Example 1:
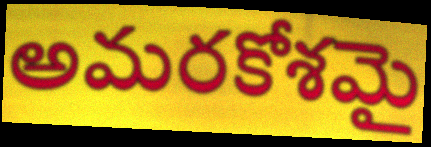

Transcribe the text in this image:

అమరకోశమై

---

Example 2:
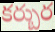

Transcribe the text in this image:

కర్బుర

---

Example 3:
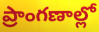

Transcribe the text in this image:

ప్రాంగణాల్లో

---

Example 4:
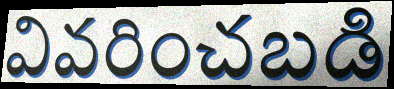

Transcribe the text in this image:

వివరించబడి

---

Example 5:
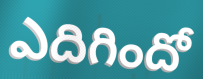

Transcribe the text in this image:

ఎదిగిందో